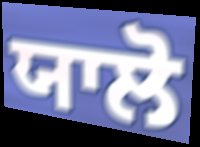
ਯਾਲੋ